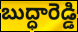
బుద్ధారెడ్డి